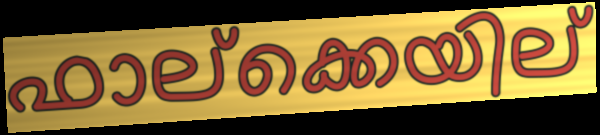
ഫാല്ക്കെയില്